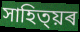
সাহিত্য়ৰ